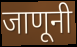
जाणूनी